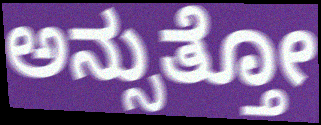
ಅನ್ಸುತ್ತೋ